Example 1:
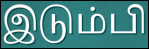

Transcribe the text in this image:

இடும்பி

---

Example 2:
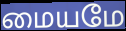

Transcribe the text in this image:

மையமே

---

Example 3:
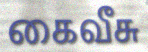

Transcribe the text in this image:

கைவீசு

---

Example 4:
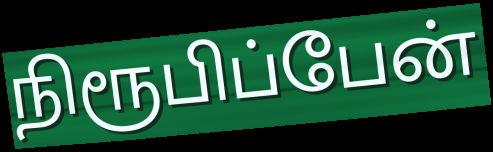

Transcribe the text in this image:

நிரூபிப்பேன்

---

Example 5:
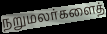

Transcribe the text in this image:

நறுமலர்களைத்